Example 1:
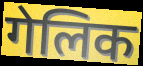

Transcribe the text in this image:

गेलिक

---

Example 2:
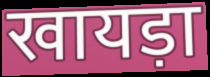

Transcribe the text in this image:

खायड़ा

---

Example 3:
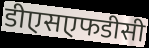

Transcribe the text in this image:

डीएसएफडीसी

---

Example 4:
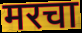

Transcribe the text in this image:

मरचा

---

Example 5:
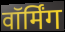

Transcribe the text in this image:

वॉर्मिंग